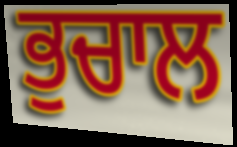
ਭੁਚਾਲ